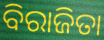
ବିରାଜିତା